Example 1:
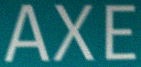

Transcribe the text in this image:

AXE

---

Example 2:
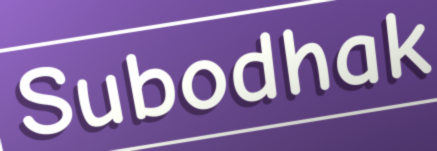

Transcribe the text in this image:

Subodhak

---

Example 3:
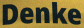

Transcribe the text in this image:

Denke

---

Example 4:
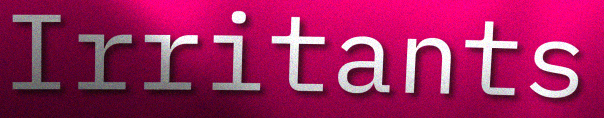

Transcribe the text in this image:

Irritants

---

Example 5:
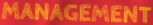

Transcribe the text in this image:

MANAGEMENT